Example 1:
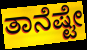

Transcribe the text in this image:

ತಾನೆಷ್ಟೇ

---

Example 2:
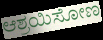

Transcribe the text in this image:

ಆಶ್ರಯಿಸೋಣ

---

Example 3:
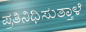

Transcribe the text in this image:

ಪ್ರತಿನಿಧಿಸುತ್ತಾಳೆ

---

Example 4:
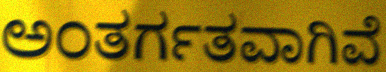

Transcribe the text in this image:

ಅಂತರ್ಗತವಾಗಿವೆ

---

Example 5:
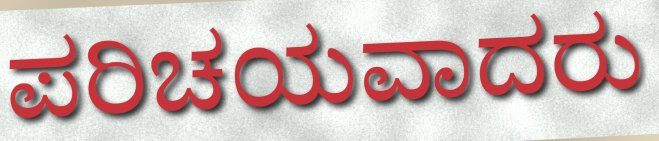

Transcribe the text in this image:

ಪರಿಚಯವಾದರು